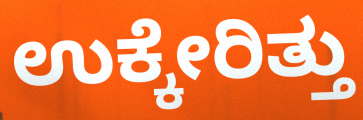
ಉಕ್ಕೇರಿತ್ತು